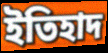
ইতিহাদ